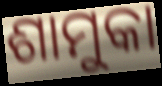
ଶାମୁକା